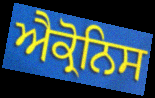
ਐਕ੍ਰੋਨਿਸ